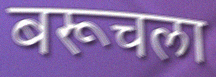
बरूचला